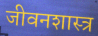
जीवनशास्त्र